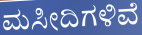
ಮಸೀದಿಗಳಿವೆ